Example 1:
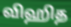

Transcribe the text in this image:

விஹித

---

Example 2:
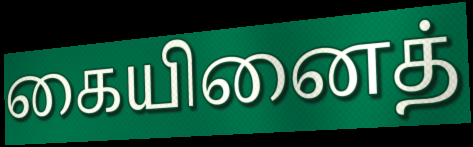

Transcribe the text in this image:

கையினைத்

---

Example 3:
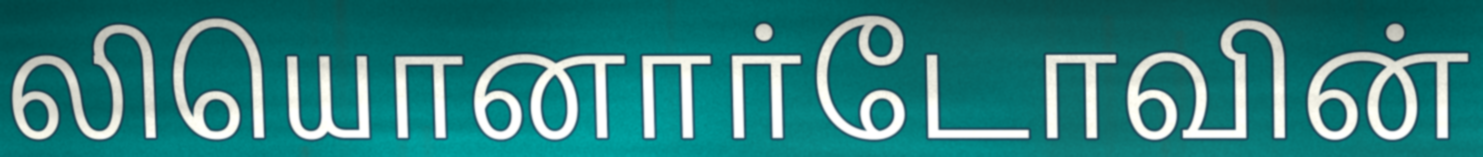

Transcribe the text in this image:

லியொனார்டோவின்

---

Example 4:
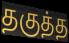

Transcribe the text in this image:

தகுத்த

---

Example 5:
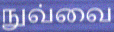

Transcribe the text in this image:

நுவ்வை